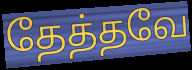
தேத்தவே